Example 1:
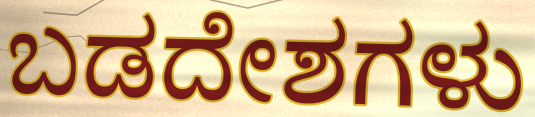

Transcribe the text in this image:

ಬಡದೇಶಗಳು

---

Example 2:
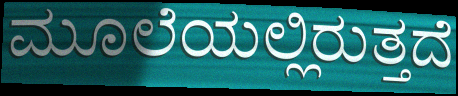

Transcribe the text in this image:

ಮೂಲೆಯಲ್ಲಿರುತ್ತದೆ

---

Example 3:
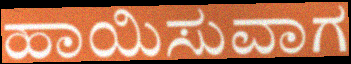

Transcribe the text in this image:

ಹಾಯಿಸುವಾಗ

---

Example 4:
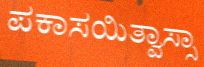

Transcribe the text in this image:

ಪಕಾಸಯಿತ್ವಾಸ್ಸಾ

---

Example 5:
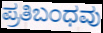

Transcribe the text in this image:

ಪ್ರತಿಬಂಧವು